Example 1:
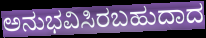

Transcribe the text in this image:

ಅನುಭವಿಸಿರಬಹುದಾದ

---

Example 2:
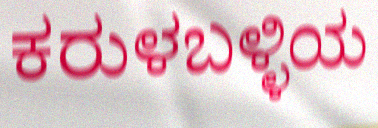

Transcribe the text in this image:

ಕರುಳಬಳ್ಳಿಯ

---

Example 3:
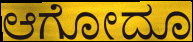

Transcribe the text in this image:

ಆಗೋದೂ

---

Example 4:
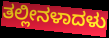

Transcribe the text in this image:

ತಲ್ಲೀನಳಾದಳು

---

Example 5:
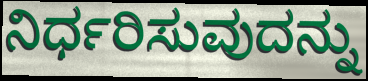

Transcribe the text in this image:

ನಿರ್ಧರಿಸುವುದನ್ನು